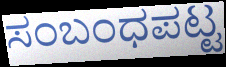
ಸಂಬಂಧಪಟ್ಟ